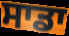
ਸਾਡਾ